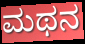
ಮಥನ